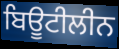
ਬਿਊਟੀਲੀਨ